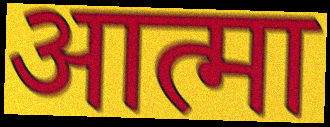
आत्मा